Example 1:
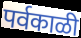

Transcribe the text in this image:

पर्वकाळी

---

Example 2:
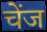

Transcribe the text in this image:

चेंज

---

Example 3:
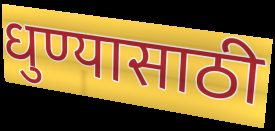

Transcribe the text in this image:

धुण्यासाठी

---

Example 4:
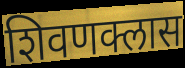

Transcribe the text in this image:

शिवणक्लास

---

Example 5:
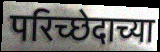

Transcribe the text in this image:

परिच्छेदाच्या